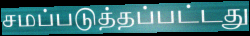
சமப்படுத்தப்பட்டது